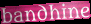
bandhine